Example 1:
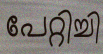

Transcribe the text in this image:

പേറ്റിച്ചി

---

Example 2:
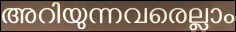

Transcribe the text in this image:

അറിയുന്നവരെല്ലാം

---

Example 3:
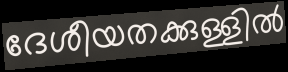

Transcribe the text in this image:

ദേശീയതക്കുള്ളിൽ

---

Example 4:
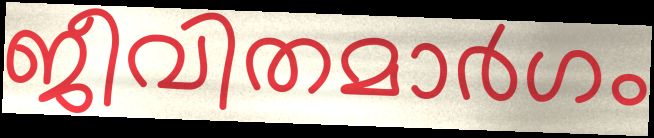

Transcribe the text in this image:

ജീവിതമാർഗം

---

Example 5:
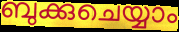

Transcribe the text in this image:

ബുക്കുചെയ്യാം